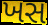
ખસ